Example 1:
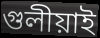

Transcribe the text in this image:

গুলীয়াই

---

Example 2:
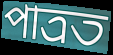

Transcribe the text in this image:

পাত্ৰত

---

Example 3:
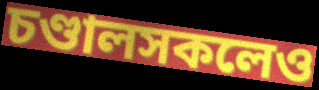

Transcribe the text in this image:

চণ্ডালসকলেও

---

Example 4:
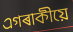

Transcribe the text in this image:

এগৰাকীয়ে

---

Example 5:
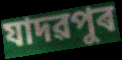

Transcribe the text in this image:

যাদৱপুৰ